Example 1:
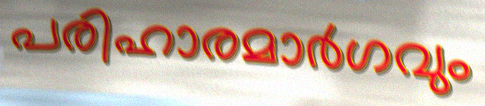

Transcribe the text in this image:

പരിഹാരമാർഗവും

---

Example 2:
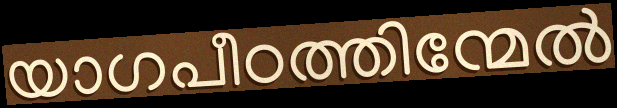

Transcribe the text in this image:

യാഗപീഠത്തിന്മേൽ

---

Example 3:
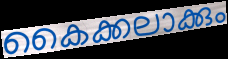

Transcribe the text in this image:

കൈക്കലാക്കും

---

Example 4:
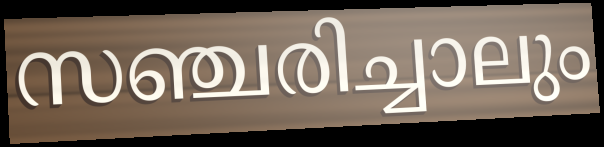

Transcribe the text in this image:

സഞ്ചരിച്ചാലും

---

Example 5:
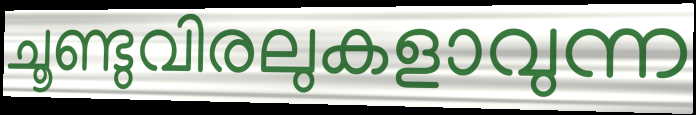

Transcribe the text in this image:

ചൂണ്ടുവിരലുകളാവുന്ന